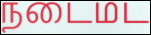
நடைமட